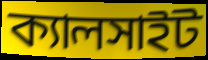
ক্যালসাইট